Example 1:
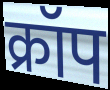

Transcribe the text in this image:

क्रॉप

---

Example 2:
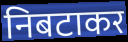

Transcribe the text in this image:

निबटाकर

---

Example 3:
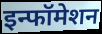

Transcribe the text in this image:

इन्फॉमेशन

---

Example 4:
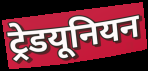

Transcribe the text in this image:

ट्रेडयूनियन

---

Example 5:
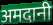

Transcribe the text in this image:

अमदानी